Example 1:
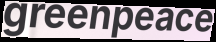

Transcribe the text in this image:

greenpeace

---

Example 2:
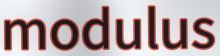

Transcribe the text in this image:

modulus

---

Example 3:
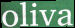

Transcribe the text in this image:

oliva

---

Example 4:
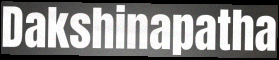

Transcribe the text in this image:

Dakshinapatha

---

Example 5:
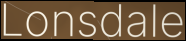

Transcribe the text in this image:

Lonsdale